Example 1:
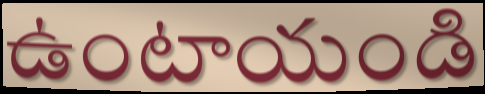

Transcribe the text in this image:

ఉంటాయండి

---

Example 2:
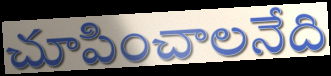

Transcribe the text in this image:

చూపించాలనేది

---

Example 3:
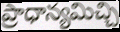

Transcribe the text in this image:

ప్రాధాన్యమిచ్చి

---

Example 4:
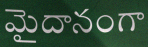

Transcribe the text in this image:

మైదానంగా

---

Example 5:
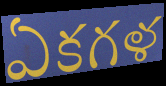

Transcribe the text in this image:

ఏకగళ